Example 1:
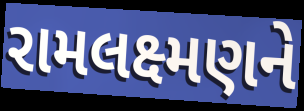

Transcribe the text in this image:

રામલક્ષ્મણને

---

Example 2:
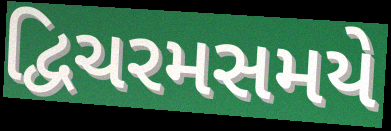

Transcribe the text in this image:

દ્વિચરમસમયે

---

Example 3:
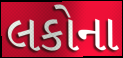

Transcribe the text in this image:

લકોના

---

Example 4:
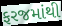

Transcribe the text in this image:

ફરજમાંથી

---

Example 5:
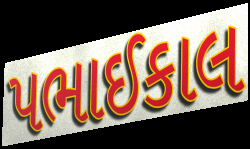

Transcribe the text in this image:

પભાઈકાલ